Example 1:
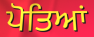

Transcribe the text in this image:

ਪੋਤਿਆਂ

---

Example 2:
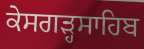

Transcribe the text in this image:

ਕੇਸਗੜ੍ਹਸਾਹਿਬ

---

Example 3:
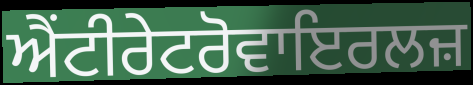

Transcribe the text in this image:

ਐਂਟੀਰੇਟਰੋਵਾਇਰਲਜ਼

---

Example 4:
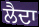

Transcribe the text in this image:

ਲੈਦਾ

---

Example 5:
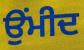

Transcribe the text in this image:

ਉਂਮੀਦ